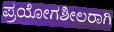
ಪ್ರಯೋಗಶೀಲರಾಗಿ